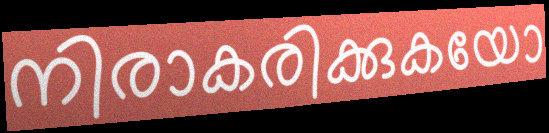
നിരാകരിക്കുകയോ